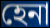
হেনা